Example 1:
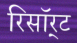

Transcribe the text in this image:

रिसॉर्ट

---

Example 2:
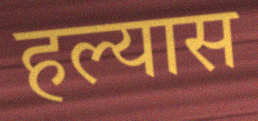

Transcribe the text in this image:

हल्यास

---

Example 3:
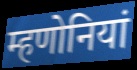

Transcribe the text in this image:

म्हणोनियां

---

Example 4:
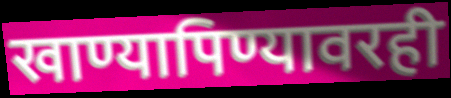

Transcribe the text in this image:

खाण्यापिण्यावरही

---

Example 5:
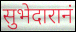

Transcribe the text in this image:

सुभेदारानं